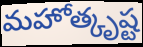
మహోత్కృష్ట